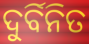
ଦୁର୍ବିନିତ